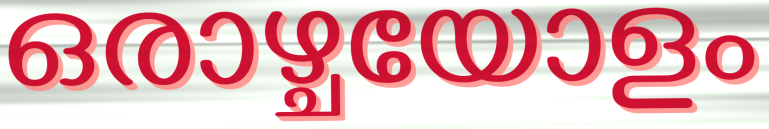
ഒരാഴ്ചയോളം